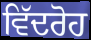
ਵਿੱਦਰੋਹ